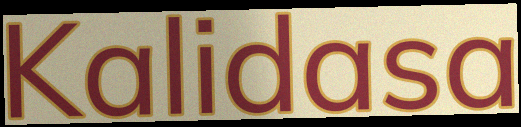
Kalidasa